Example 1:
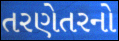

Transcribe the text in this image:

તરણેતરનો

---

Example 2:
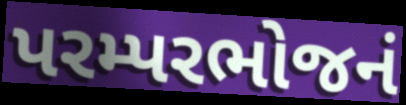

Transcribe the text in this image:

પરમ્પરભોજનં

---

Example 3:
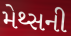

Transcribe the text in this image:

મેથ્સની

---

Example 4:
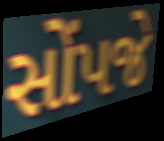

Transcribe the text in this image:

સોંપજે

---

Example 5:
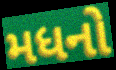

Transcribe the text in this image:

મધનો